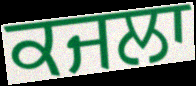
ਕਜਲਾ